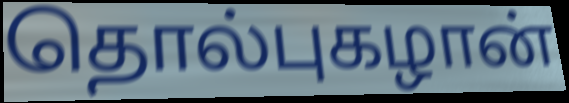
தொல்புகழான்